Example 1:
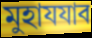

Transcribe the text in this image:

মুহাযযাব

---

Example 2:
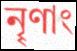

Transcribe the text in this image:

নৄণাং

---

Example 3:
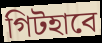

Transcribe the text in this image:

গিটহাবে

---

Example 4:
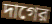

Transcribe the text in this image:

দাগের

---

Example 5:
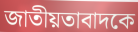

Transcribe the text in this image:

জাতীয়তাবাদকে